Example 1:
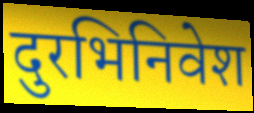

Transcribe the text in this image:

दुरभिनिवेश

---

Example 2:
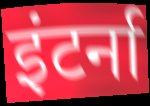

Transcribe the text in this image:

इंटर्ना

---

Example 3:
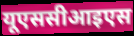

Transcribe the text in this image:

यूएससीआइएस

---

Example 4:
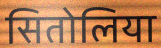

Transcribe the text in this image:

सितोलिया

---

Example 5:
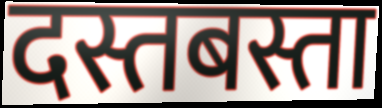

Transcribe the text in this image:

दस्तबस्ता